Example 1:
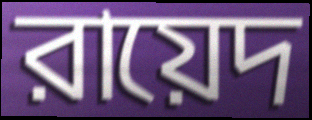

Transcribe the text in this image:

রায়েদ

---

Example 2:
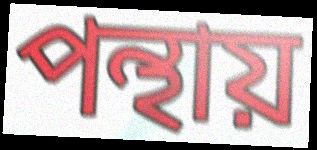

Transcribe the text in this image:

পন্থায়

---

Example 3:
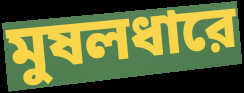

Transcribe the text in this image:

মুষলধারে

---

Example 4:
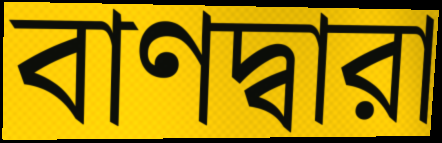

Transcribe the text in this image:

বাণদ্বারা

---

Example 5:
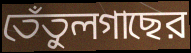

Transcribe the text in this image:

তেঁতুলগাছের